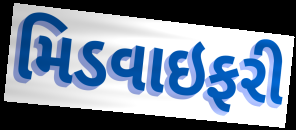
મિડવાઇફરી